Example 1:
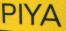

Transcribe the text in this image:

PIYA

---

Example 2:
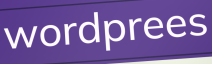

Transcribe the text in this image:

wordprees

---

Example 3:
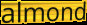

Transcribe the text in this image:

almond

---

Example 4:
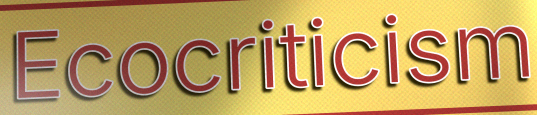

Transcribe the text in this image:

Ecocriticism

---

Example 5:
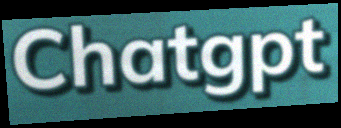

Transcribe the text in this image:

Chatgpt